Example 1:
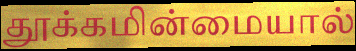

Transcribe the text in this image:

தூக்கமின்மையால்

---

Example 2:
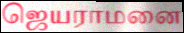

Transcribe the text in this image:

ஜெயராமனை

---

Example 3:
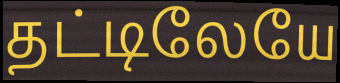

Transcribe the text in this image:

தட்டிலேயே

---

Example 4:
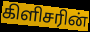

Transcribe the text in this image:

கிளிசரின்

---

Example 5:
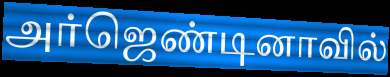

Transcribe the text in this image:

அர்ஜெண்டினாவில்